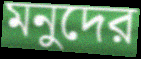
মনুদের